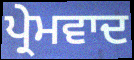
ਪ੍ਰੇਮਵਾਦ